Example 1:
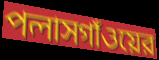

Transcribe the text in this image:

পলাসগাঁওয়ের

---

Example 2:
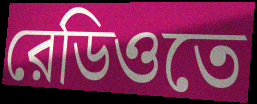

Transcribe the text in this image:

রেডিওতে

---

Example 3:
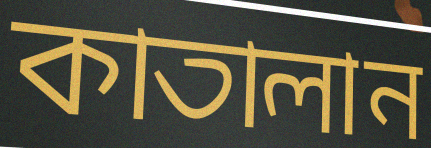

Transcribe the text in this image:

কাতালান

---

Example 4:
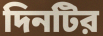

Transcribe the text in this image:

দিনটির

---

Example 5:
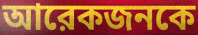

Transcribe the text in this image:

আরেকজনকে